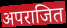
अपराजित